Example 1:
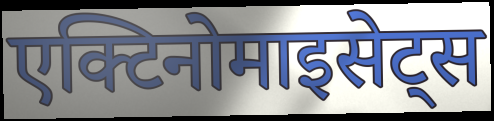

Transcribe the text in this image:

एक्टिनोमाइसेट्स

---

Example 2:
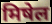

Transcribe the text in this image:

मिषेल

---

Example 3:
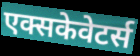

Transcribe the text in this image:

एक्सकेवेटर्स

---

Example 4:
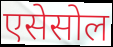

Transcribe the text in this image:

एसेसोल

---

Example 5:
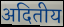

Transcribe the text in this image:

अदितीय